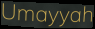
Umayyah